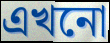
এখনো